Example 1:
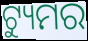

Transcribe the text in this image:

ଟ୍ୟୁମର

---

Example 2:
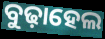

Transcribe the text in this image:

ବୁଢ଼ାହେଲ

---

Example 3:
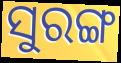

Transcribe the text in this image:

ସୁରଙ୍ଗ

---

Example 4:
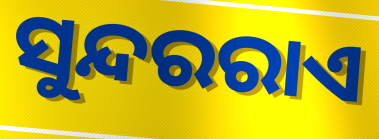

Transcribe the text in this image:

ସୁନ୍ଦରରାଏ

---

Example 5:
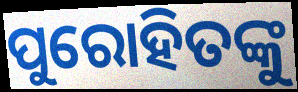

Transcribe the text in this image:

ପୁରୋହିତଙ୍କୁ